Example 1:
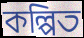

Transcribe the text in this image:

কল্পিত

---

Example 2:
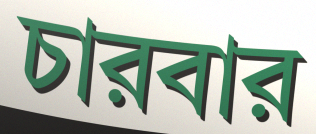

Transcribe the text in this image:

চারবার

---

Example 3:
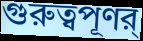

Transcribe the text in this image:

গুরুত্বপূণর্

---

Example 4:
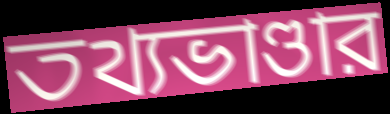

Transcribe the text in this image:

তথ্যভাণ্ডার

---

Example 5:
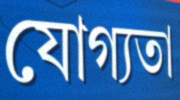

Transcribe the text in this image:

যোগ্যতা